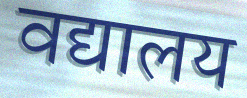
वद्यालय